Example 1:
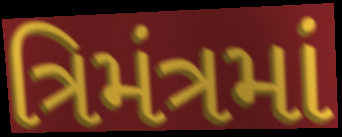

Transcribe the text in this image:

ત્રિમંત્રમાં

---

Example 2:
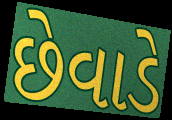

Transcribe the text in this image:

છેવાડે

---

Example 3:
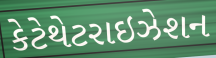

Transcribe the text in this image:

કેટેથેટરાઇઝેશન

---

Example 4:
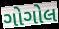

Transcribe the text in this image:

ગોગોલ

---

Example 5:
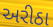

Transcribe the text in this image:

અરીઠા